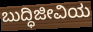
ಬುದ್ಧಿಜೀವಿಯ